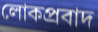
লোকপ্রবাদ